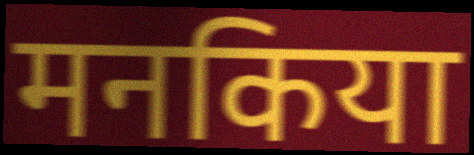
मनकिया